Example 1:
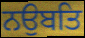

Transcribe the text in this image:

ਨਉਬਤਿ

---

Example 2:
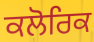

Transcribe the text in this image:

ਕਲੋਰਿਕ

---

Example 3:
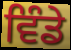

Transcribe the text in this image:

ਵਿੰਡੇ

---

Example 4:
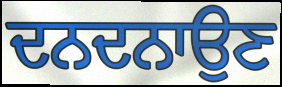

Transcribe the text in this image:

ਦਨਦਨਾਉਣ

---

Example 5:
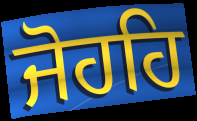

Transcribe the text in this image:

ਜੋਹਹਿ